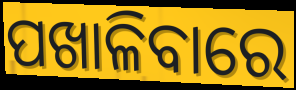
ପଖାଳିବାରେ